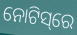
ନୋଟିସ୍‌ରେ